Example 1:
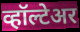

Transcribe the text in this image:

व्हॉल्टेअर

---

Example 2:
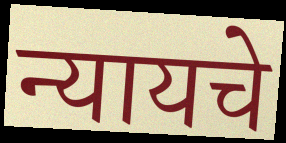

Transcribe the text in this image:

न्यायचे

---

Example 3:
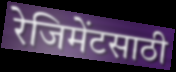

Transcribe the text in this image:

रेजिमेंटसाठी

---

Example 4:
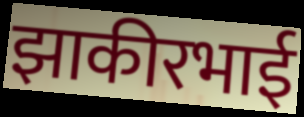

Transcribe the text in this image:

झाकीरभाई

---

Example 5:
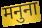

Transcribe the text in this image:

मनुना